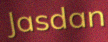
Jasdan